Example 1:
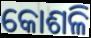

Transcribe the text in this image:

କୋଶଳି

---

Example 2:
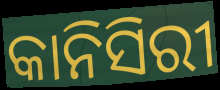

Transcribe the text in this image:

କାନିସିରୀ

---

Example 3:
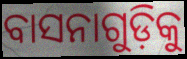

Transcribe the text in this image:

ବାସନାଗୁଡ଼ିକୁ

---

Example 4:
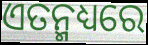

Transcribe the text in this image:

ଏତନ୍ମଧ୍ୟରେ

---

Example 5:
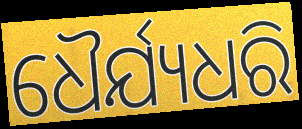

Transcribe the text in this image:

ଧୈର୍ଯ୍ୟଧରି